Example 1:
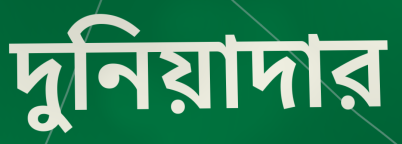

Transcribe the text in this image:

দুনিয়াদার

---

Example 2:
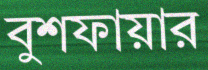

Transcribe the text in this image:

বুশফায়ার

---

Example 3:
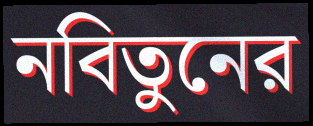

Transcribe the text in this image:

নবিতুনের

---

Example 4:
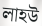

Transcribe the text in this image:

লাহউ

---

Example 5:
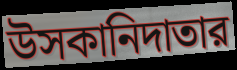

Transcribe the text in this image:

উসকানিদাতার